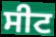
ਸੀਟ